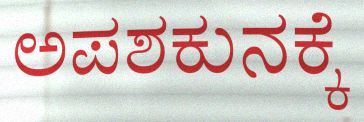
ಅಪಶಕುನಕ್ಕೆ